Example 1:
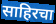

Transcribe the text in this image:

साहिरचा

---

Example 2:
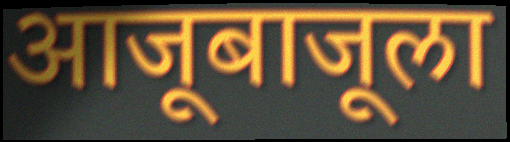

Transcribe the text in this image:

आजूबाजूला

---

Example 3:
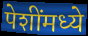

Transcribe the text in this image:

पेशींमध्ये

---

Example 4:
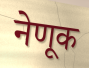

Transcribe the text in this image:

नेणूक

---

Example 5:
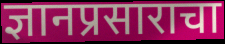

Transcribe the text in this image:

ज्ञानप्रसाराचा